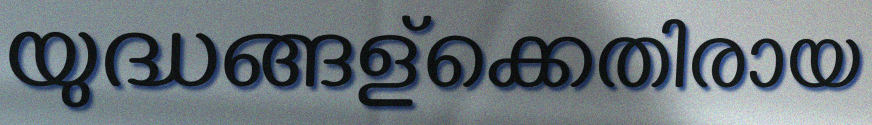
യുദ്ധങ്ങള്ക്കെതിരായ